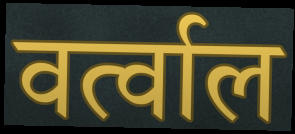
वर्त्वाल